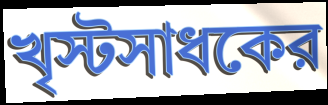
খৃস্টসাধকের